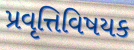
પ્રવૃત્તિવિષયક